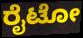
ರೈಟೋ